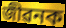
জীৱনক